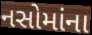
નસોમાંના